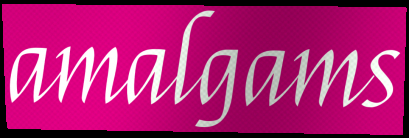
amalgams